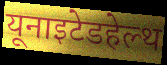
यूनाइटेडहेल्थ